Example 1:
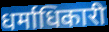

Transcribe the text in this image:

धर्माधिकारी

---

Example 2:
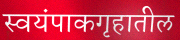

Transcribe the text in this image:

स्वयंपाकगृहातील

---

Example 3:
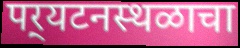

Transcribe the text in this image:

पर्यटनस्थळाचा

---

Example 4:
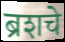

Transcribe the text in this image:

ब्रशचे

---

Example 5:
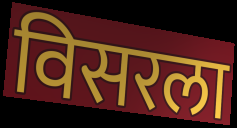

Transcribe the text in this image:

विसरला